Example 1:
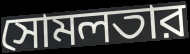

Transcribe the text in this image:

সোমলতার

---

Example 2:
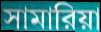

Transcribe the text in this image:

সামারিয়া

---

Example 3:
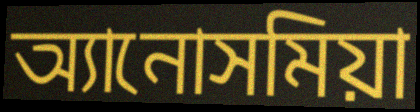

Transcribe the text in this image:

অ্যানোসমিয়া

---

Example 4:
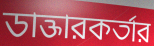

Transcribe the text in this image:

ডাক্তারকর্তার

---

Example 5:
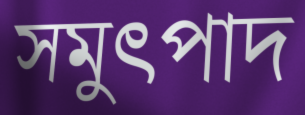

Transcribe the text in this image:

সমুৎপাদ